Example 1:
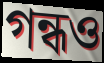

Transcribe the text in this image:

গন্ধও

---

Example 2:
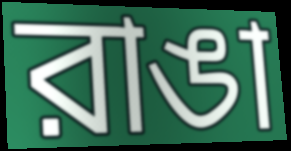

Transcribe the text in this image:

রাঙা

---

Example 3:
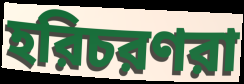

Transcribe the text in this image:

হরিচরণরা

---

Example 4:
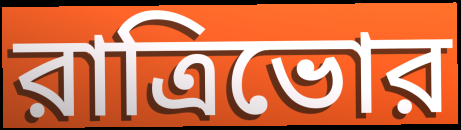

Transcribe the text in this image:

রাত্রিভোর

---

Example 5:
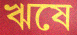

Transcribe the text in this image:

ঋষে